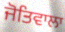
ਜੋਤਿਵਾਲਾ